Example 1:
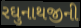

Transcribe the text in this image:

રઘુનાથજીની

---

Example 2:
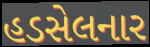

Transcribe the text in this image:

હડસેલનાર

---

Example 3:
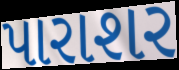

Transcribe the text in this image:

પારાશર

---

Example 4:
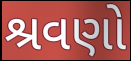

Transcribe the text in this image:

શ્રવણો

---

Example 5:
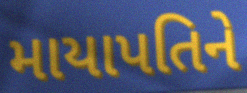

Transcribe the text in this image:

માયાપતિને